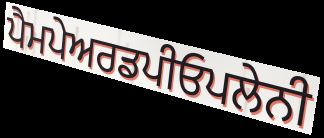
ਪੈਮਪੇਅਰਡਪੀਓਪਲੇਨੀ